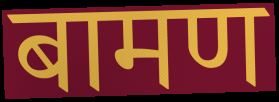
बामण